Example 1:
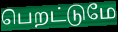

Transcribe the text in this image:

பெறட்டுமே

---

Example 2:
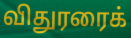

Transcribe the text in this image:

விதுரரைக்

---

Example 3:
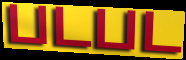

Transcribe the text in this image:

படபட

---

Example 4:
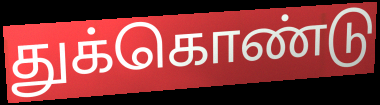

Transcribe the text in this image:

துக்கொண்டு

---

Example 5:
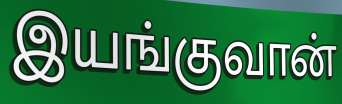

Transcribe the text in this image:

இயங்குவான்